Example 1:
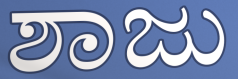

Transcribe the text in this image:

ಶಾಜು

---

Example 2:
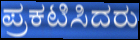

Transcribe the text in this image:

ಪ್ರಕಟಿಸಿದರು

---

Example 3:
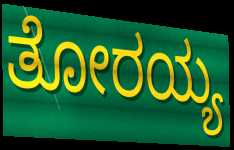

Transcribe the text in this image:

ತೋರಯ್ಯ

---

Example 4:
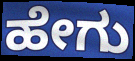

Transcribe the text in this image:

ಹೇಗು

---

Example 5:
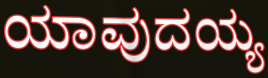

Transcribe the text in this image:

ಯಾವುದಯ್ಯ